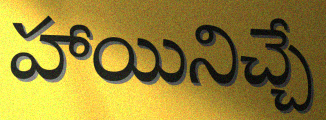
హాయినిచ్చే